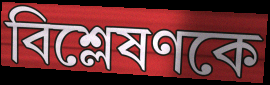
বিশ্লেষণকে